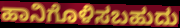
ಹಾನಿಗೊಳಿಸಬಹುದು